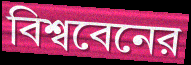
বিশ্ববেনের